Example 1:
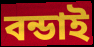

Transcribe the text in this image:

বন্ডাই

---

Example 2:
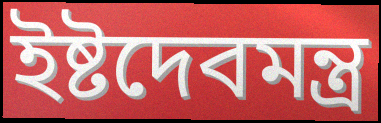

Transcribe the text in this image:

ইষ্টদেবমন্ত্র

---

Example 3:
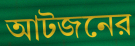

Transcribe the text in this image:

আটজনের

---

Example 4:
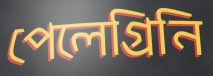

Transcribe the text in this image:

পেলেগ্রিনি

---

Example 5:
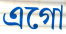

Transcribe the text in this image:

এগো